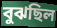
বুঝছিল